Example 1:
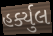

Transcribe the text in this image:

હર્ક્યુલ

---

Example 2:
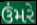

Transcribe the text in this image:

ઉંમરે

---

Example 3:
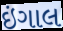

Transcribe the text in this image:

ઇંગાલ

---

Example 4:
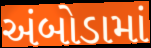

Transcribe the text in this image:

અંબોડામાં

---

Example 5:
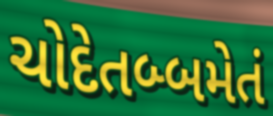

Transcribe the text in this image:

ચોદેતબ્બમેતં